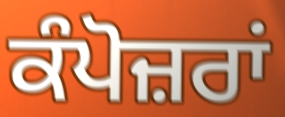
ਕੰਪੋਜ਼ਰਾਂ